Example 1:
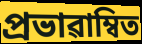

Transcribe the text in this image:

প্ৰভাৱাম্বিত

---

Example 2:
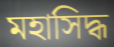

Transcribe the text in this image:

মহাসিদ্ধ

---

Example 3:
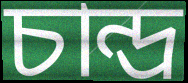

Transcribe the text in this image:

চান্দ্ৰ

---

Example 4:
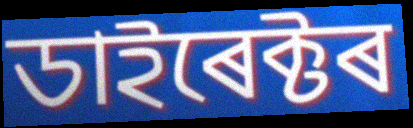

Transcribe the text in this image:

ডাইৰেক্টৰ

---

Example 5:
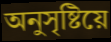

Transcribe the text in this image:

অনুসৃষ্টিয়ে